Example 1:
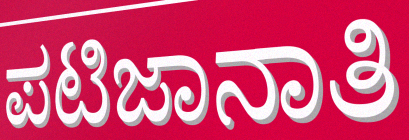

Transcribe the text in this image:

ಪಟಿಜಾನಾತಿ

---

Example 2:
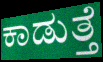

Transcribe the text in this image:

ಕಾಡುತ್ತೆ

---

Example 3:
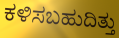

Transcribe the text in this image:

ಕಳಿಸಬಹುದಿತ್ತು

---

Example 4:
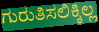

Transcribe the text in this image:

ಗುರುತಿಸಲಿಕ್ಕಿಲ್ಲ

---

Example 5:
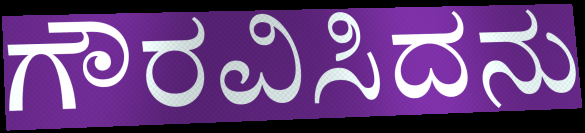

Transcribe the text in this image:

ಗೌರವಿಸಿದನು